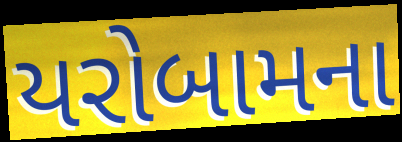
યરોબામના